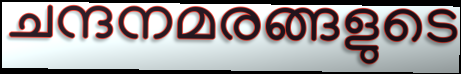
ചന്ദനമരങ്ങളുടെ